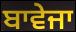
ਬਾਵੇਜਾ